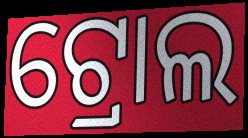
ଟ୍ରୋଲ